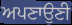
ਅਪਣਾਉਣੀ